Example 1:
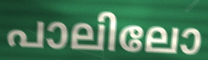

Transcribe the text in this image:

പാലിലോ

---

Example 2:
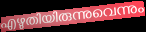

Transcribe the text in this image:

എഴുതിയിരുന്നുവെന്നും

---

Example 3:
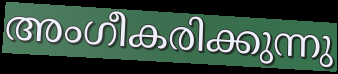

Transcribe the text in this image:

അംഗീകരിക്കുന്നു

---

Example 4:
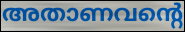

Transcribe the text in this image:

അതാണവന്റെ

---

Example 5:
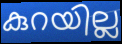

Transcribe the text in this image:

കുറയില്ല